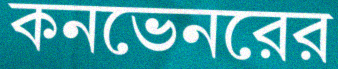
কনভেনরের